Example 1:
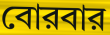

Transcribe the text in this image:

বোরবার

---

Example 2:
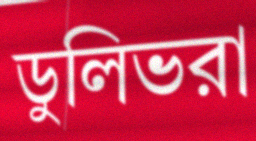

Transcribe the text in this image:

ডুলিভরা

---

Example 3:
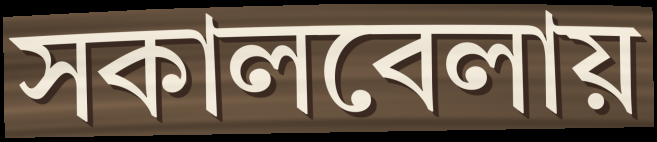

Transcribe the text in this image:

সকালবেলায়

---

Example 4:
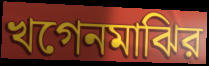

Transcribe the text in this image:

খগেনমাঝির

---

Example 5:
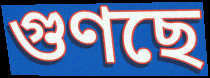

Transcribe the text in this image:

গুণছে